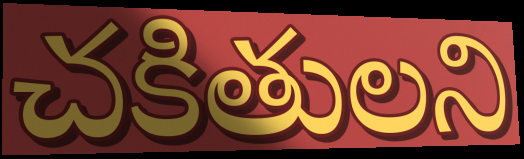
చకితులని